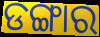
ଡଙ୍ଗାର